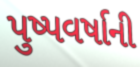
પુષ્પવર્ષાની